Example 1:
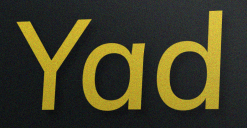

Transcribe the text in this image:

Yad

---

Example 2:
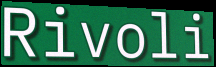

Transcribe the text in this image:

Rivoli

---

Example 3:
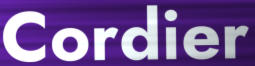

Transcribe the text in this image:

Cordier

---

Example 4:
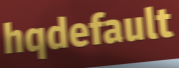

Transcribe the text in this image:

hqdefault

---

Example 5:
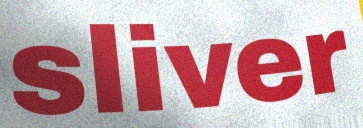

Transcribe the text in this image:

sliver